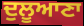
ਦੁਲੂਆਣਾ